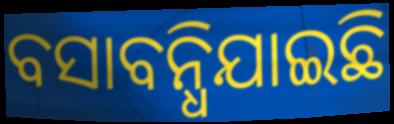
ବସାବନ୍ଧିଯାଇଛି